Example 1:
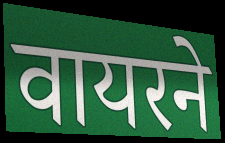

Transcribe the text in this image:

वायरने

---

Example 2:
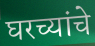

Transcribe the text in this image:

घरच्यांचे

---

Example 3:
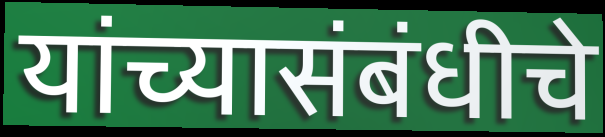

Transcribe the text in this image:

यांच्यासंबंधीचे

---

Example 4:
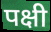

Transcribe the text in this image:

पक्षी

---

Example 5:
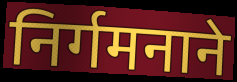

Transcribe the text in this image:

निर्गमनाने